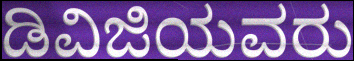
ಡಿವಿಜಿಯವರು